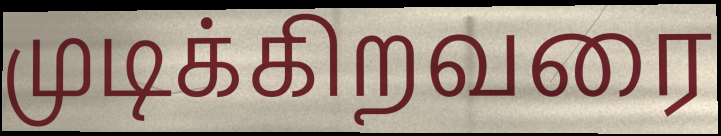
முடிக்கிறவரை